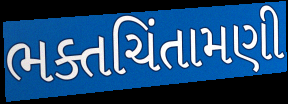
ભક્તચિંતામણી